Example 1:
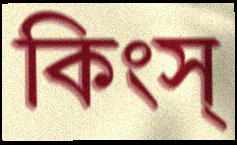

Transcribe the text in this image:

কিংস্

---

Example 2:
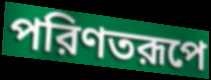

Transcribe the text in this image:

পরিণতরূপে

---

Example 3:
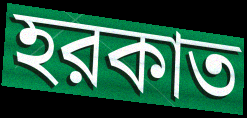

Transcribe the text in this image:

হরকাত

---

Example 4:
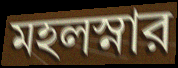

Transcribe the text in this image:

মহলস্নার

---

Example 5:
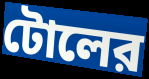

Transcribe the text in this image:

টোলের